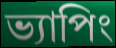
ভ্যাপিং